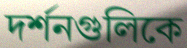
দর্শনগুলিকে